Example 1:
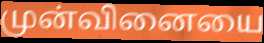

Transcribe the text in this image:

முன்வினையை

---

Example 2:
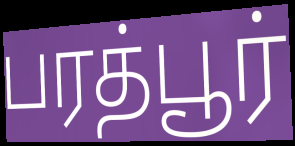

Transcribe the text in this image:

பரத்பூர்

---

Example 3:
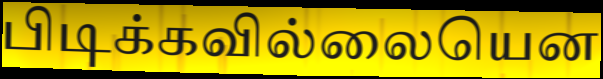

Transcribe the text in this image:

பிடிக்கவில்லையென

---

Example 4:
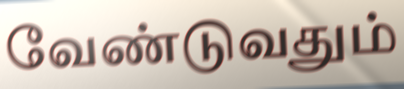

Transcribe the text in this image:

வேண்டுவதும்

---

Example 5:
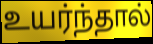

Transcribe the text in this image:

உயர்ந்தால்